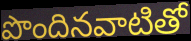
పొందినవాటితో